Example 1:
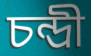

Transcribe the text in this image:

চন্দ্রী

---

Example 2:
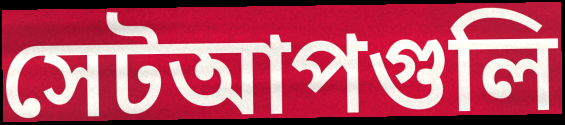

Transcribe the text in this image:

সেটআপগুলি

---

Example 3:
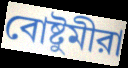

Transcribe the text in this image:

বোষ্টুমীরা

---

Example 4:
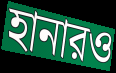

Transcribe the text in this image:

হানারও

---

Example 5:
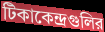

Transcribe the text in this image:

টিকাকেন্দ্রগুলির